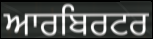
ਆਰਬਿਰਟਰ